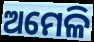
ଅମେଳି